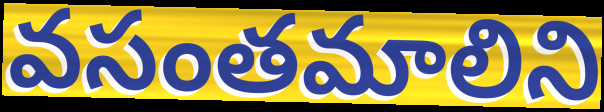
వసంతమాలిని